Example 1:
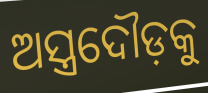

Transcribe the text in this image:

ଅସ୍ତ୍ରଦୌଡ଼କୁ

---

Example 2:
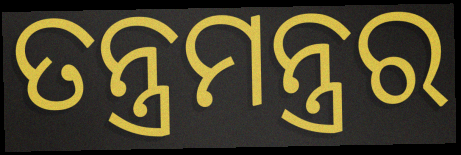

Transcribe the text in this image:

ତନ୍ତ୍ରମନ୍ତ୍ରର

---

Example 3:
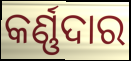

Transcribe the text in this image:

କର୍ଣ୍ଣଦାର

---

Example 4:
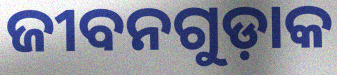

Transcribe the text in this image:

ଜୀବନଗୁଡ଼ାକ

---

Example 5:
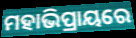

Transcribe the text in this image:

ମହାଭିପ୍ରାୟରେ